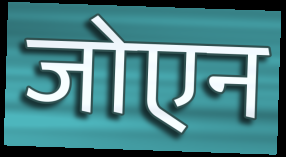
जोएन